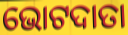
ଭୋଟଦାତା